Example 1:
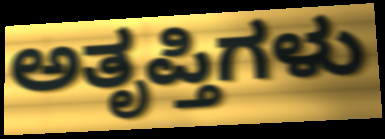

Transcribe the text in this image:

ಅತೃಪ್ತಿಗಳು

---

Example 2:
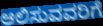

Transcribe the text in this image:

ಆಲಿಸುವವರಿಗೆ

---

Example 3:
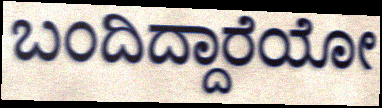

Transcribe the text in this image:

ಬಂದಿದ್ದಾರೆಯೋ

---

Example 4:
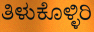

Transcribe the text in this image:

ತಿಳುಕೊಳ್ಳಿರಿ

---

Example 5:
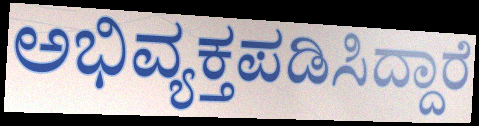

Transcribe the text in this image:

ಅಭಿವ್ಯಕ್ತಪಡಿಸಿದ್ದಾರೆ